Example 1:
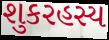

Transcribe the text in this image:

શુકરહસ્ય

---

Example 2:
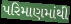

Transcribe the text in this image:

પરિમાણમાંથી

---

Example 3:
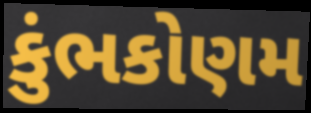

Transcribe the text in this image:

કુંભકોણમ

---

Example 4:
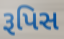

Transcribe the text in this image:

રૂપિસ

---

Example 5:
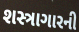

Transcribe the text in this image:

શસ્ત્રાગારની